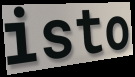
isto